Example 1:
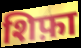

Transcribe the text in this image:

शिफ़ा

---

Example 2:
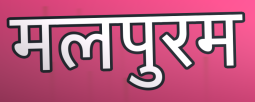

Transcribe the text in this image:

मलपुरम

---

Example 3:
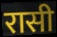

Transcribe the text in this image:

रासी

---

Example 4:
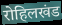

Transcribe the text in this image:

रोहिलखंड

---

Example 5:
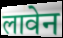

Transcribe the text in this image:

लावेन